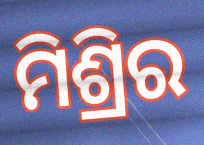
ମିଶ୍ରିର